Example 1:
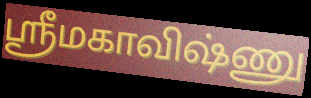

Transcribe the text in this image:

ஸ்ரீமகாவிஷ்ணு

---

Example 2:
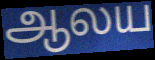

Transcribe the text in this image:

ஆலய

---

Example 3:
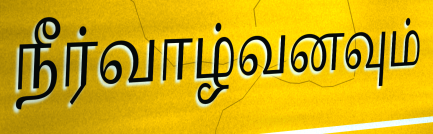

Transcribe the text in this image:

நீர்வாழ்வனவும்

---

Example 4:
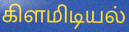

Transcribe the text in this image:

கிளமிடியல்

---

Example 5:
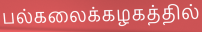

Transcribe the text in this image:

பல்கலைக்கழகத்தில்